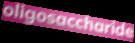
oligosaccharide